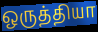
ஒருத்தியா